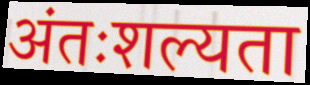
अंतःशल्यता